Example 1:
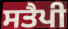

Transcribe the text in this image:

ਸਤੈਪੀ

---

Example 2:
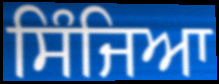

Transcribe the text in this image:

ਸਿੰਜਿਆ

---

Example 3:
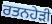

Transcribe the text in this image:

ਰਤਨਹੇੜੀ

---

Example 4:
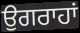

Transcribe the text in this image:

ਉਗਰਾਹਾਂ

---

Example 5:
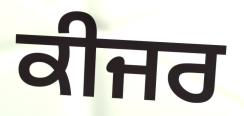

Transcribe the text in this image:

ਕੀਜਰ